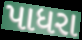
પાધરા